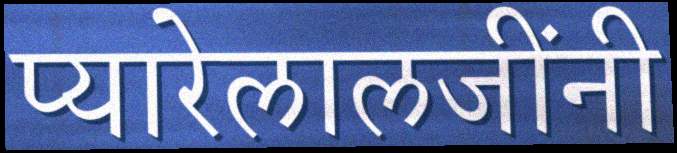
प्यारेलालजींनी